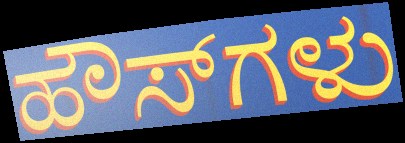
ಹೌಸ್‌ಗಳು